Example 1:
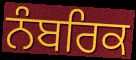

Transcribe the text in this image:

ਨੰਬਰਿਕ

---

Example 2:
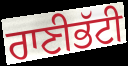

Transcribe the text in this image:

ਰਾਣੀਭੱਟੀ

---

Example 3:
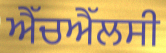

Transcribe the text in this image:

ਐੱਚਐੱਲਸੀ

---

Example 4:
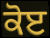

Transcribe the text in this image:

ਕੋੲ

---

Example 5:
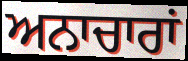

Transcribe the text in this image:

ਅਨਾਚਾਰਾਂ